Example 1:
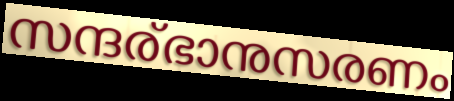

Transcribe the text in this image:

സന്ദര്ഭാനുസരണം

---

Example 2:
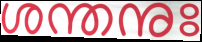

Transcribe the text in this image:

ശന്തനുഃ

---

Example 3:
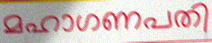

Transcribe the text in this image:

മഹാഗണപതി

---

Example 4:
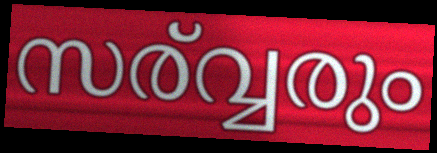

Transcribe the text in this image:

സര്വ്വരും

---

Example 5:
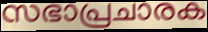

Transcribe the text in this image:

സഭാപ്രചാരക